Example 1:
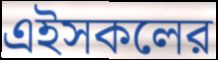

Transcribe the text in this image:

এইসকলের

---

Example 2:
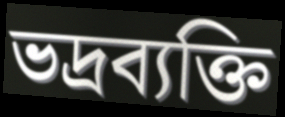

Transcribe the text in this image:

ভদ্রব্যক্তি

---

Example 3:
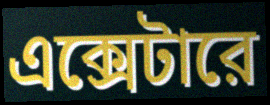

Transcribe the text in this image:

এক্সেটারে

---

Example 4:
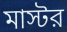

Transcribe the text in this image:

মাস্টর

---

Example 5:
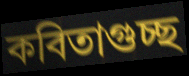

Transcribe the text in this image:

কবিতাগুচ্ছ